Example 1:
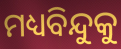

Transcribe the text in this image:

ମଧ୍ୟବିନ୍ଦୁକୁ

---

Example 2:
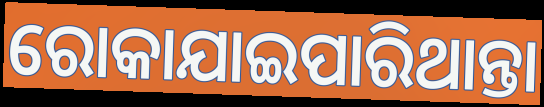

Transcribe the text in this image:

ରୋକାଯାଇପାରିଥାନ୍ତା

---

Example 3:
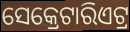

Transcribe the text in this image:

ସେକ୍ରେଟାରିଏଟ୍ର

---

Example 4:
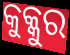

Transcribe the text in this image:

କୁକ୍କୁର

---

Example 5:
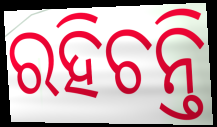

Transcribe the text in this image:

ରହିଚନ୍ତି